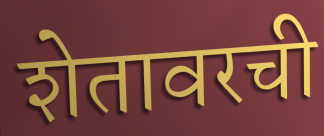
शेतावरची